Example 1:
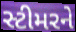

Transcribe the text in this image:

સ્ટીમરને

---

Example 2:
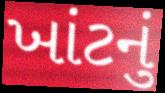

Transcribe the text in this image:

ખાંટનું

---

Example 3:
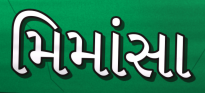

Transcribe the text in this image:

મિમાંસા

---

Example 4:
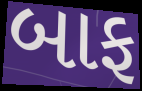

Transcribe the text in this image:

બાફ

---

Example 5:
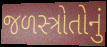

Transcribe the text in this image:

જળસ્ત્રોતોનું